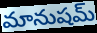
మానుషమ్